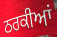
ਠਰਕੀਆਂ